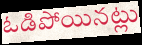
ఓడిపోయినట్లు